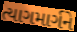
ત્યાગમાર્ગને